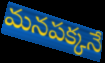
మనపక్కనే